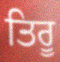
ਤਿਰੂ